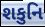
શકુનિ